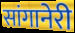
सांगानेरी